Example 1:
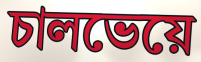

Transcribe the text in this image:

চালভেয়ে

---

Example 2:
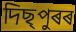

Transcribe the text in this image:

দিছ্পুৰৰ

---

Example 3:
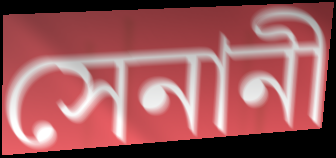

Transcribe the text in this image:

সেনানী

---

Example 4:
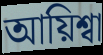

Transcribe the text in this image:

আয়িশ্বা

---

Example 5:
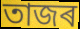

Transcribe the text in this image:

তাজৰ